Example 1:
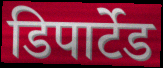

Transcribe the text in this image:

डिपार्टेड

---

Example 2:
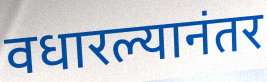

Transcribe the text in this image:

वधारल्यानंतर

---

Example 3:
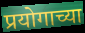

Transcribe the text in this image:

प्रयोगाच्या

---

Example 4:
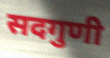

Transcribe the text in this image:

सदगुणी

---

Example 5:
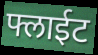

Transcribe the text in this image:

फ्लाईट